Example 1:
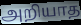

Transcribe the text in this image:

அறியாத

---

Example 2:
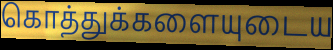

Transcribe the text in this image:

கொத்துக்களையுடைய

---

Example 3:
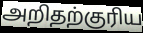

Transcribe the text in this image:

அறிதற்குரிய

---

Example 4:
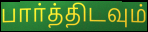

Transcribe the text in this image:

பார்த்திடவும்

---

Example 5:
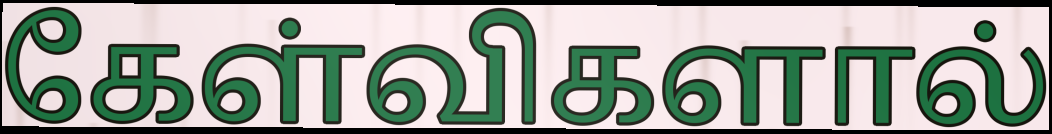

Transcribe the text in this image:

கேள்விகளால்